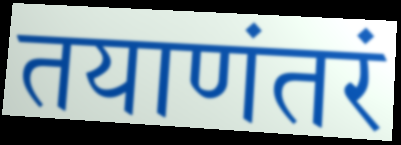
तयाणंतरं